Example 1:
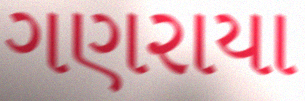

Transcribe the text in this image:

ગણરાયા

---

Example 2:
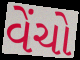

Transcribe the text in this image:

વેંચો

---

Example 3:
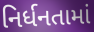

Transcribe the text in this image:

નિર્ધનતામાં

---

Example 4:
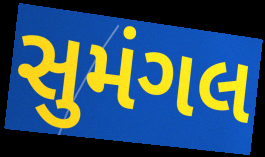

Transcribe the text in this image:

સુમંગલ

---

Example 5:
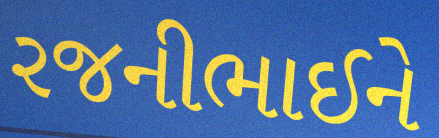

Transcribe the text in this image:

રજનીભાઈને